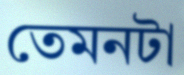
তেমনটা